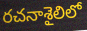
రచనాశైలిలో